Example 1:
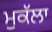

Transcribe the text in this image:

ਮੁਕੱਲਾ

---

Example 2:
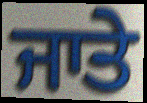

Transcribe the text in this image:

ਜਾਤੇ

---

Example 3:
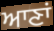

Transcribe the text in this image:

ਆਣਾਂ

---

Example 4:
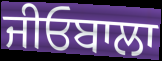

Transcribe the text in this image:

ਜੀਓਬਾਲਾ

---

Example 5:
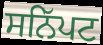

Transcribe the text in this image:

ਸਨਿੱਪਟ